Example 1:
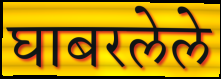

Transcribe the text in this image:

घाबरलेले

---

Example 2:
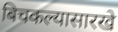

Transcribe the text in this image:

बिचकल्यासारखे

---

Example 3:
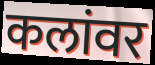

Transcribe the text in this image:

कलांवर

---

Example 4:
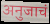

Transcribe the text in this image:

अनुजाचं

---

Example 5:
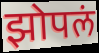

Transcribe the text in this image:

झोपलं